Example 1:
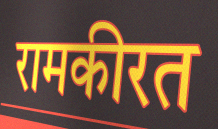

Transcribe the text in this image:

रामकीरत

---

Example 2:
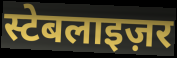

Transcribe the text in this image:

स्टेबलाइज़र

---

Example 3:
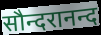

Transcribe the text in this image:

सौन्दरानन्द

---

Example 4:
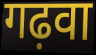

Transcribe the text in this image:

गढ़वा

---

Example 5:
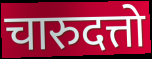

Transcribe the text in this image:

चारुदत्तो